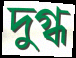
দুগ্ধ